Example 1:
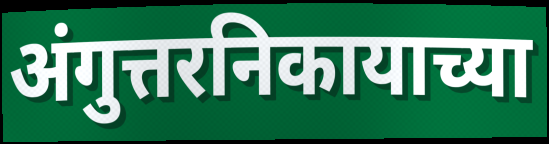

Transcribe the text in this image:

अंगुत्तरनिकायाच्या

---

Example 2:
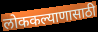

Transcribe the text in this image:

लोककल्याणासाठी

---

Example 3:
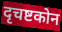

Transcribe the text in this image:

दृचष्टकोन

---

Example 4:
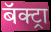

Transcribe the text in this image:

बॅक्ट्रा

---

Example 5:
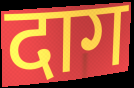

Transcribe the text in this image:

दाग